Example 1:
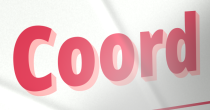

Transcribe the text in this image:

Coord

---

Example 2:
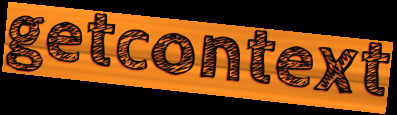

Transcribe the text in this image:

getcontext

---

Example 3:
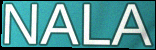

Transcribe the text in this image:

NALA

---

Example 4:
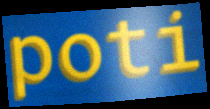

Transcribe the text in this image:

poti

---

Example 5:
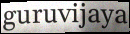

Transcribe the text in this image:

guruvijaya